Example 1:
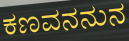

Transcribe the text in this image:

ಕಣವನನುನ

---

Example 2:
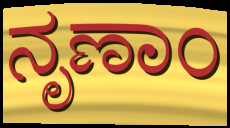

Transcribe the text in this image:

ನೃಣಾಂ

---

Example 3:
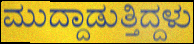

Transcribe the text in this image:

ಮುದ್ದಾಡುತ್ತಿದ್ದಳು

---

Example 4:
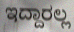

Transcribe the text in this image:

ಇದ್ದಾರಲ್ಲ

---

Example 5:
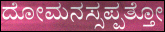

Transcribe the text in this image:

ದೋಮನಸ್ಸಪ್ಪತ್ತೋ